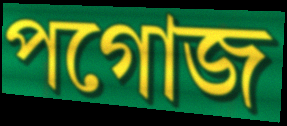
পগোজ